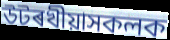
উটৰখীয়াসকলক